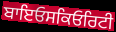
ਬਾਇਓਸਕਿਓਰਿਟੀ